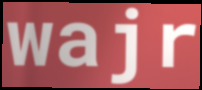
wajr